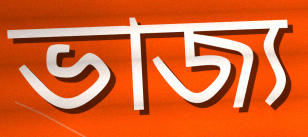
ভাজ্য